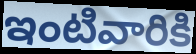
ఇంటివారికి